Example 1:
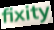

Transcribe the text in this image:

fixity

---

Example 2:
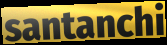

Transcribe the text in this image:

santanchi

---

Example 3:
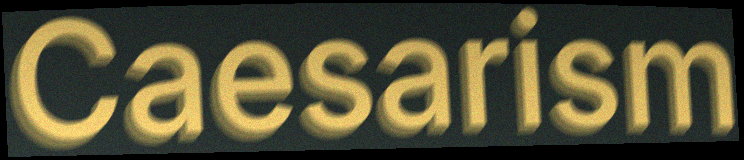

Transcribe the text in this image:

Caesarism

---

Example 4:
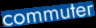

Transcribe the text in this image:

commuter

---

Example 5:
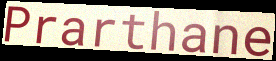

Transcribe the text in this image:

Prarthane